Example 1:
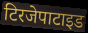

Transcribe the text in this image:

टिरजेपाटाइड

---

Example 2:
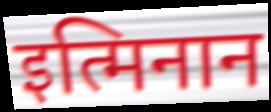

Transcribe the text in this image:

इत्मिनान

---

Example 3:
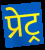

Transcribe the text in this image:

प्रेट्र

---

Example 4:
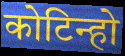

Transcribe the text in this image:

कोटिन्हो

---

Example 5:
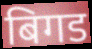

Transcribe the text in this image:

बिगड